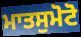
ਮਾਤਸੁਮੋਟੋ